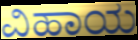
ವಿಹಾಯ